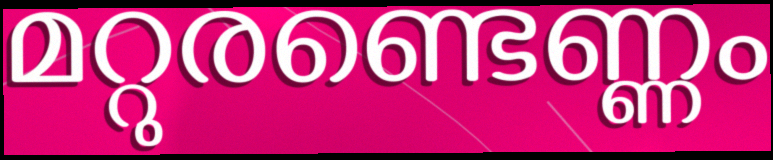
മറ്റുരണ്ടെണ്ണം